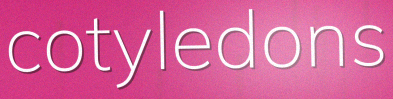
cotyledons